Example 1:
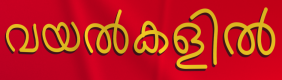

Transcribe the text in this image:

വയൽകളിൽ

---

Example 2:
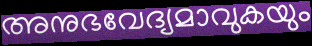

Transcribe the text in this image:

അനുഭവേദ്യമാവുകയും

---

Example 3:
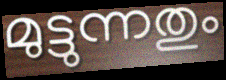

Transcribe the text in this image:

മുട്ടുന്നതും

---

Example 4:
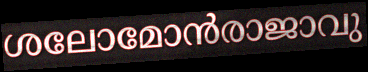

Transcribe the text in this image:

ശലോമോൻരാജാവു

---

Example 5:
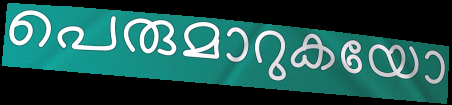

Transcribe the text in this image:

പെരുമാറുകയോ